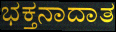
ಭಕ್ತನಾದಾತ